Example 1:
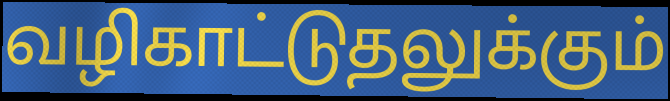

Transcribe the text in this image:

வழிகாட்டுதலுக்கும்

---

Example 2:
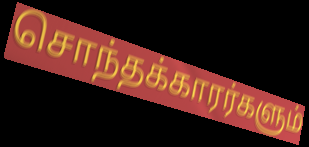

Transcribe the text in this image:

சொந்தக்காரர்களும்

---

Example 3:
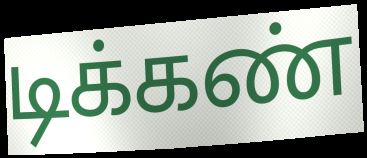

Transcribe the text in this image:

டிக்கண்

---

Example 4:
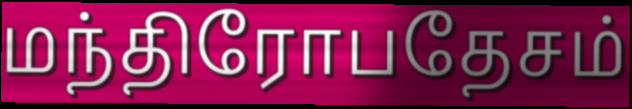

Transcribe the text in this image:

மந்திரோபதேசம்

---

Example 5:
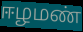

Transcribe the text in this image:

ஈழமண்